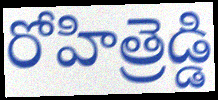
రోహిత్రెడ్డి